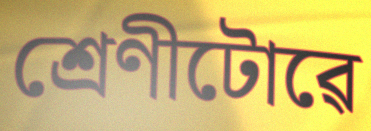
শ্ৰেণীটোৱে